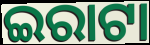
ଇରାଟା